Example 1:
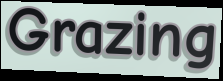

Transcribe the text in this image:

Grazing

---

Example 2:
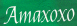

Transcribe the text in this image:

Amaxoxo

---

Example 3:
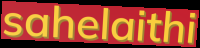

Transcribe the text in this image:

sahelaithi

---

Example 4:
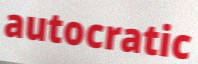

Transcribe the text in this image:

autocratic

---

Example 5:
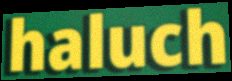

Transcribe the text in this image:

haluch